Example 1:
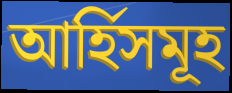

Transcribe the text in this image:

আৰ্হিসমূহ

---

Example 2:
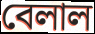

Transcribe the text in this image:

বেলাল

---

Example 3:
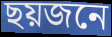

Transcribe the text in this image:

ছয়জনে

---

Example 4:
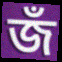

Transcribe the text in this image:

জঁ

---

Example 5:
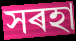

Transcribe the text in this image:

সৰহা